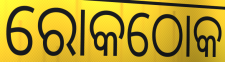
ରୋକଠୋକ